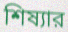
শিষ্যার